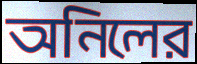
অনিলের